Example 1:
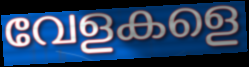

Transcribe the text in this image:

വേളകളെ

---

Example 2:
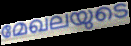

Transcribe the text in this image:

മേഖലയുടെ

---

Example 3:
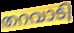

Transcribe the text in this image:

തറവാടി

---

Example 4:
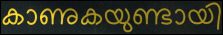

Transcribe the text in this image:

കാണുകയുണ്ടായി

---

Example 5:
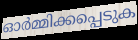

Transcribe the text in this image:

ഓർമ്മിക്കപ്പെടുക